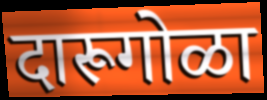
दारूगोळा